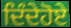
ਦਿੰਦੇਹੋਏ